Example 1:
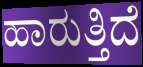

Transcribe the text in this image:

ಹಾರುತ್ತಿದೆ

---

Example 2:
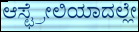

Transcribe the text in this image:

ಆಸ್ಟ್ರೇಲಿಯಾದಲ್ಲೇ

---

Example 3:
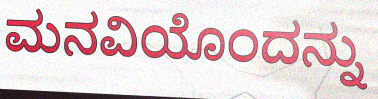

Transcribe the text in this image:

ಮನವಿಯೊಂದನ್ನು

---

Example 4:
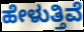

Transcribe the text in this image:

ಹೇಳುತ್ತಿವೆ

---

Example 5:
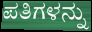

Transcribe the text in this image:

ಪತಿಗಳನ್ನು